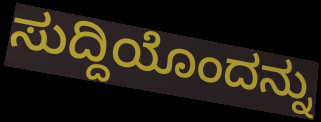
ಸುದ್ದಿಯೊಂದನ್ನು